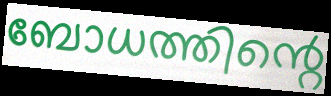
ബോധത്തിന്റെ